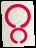
റ്റ